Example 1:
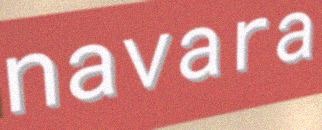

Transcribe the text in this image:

navara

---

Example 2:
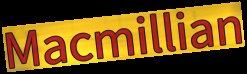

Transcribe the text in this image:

Macmillian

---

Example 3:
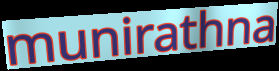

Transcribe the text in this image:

munirathna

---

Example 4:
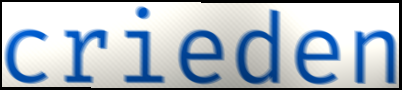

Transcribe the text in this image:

crieden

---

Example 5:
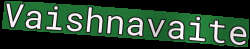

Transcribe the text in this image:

Vaishnavaite